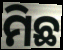
ମିଛ